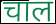
चाल